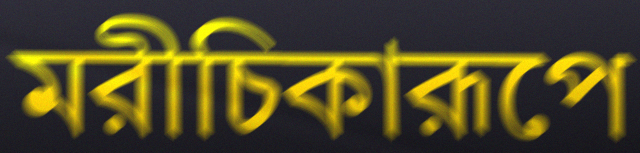
মরীচিকারূপে